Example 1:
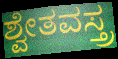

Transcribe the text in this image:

ಶ್ವೇತವಸ್ತ್ರ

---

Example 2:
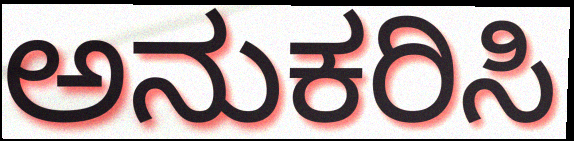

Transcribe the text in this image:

ಅನುಕರಿಸಿ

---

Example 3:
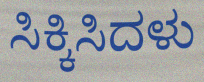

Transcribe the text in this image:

ಸಿಕ್ಕಿಸಿದಳು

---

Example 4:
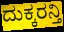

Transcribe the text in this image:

ದುಕ್ಕರನ್ತಿ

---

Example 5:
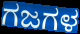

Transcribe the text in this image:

ಗಜಗಳ